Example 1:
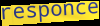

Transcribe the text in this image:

responce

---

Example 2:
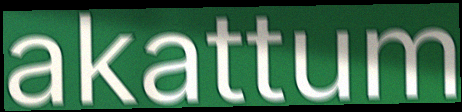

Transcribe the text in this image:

akattum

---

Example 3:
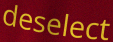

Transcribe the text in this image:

deselect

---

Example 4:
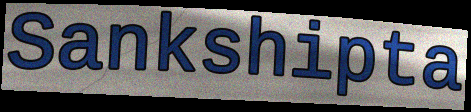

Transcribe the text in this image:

Sankshipta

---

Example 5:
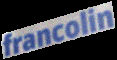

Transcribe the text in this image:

francolin